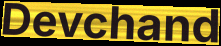
Devchand